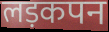
लड़कपन